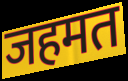
जहमत